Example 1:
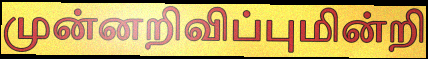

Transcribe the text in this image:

முன்னறிவிப்புமின்றி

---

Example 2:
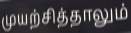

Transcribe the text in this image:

முயற்சித்தாலும்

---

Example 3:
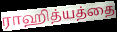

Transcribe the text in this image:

ராஹித்யத்தை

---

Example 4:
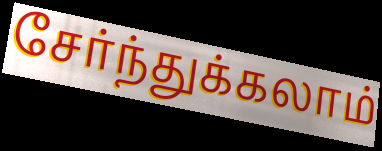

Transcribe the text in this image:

சேர்ந்துக்கலாம்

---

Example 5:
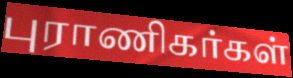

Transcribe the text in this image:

புராணிகர்கள்